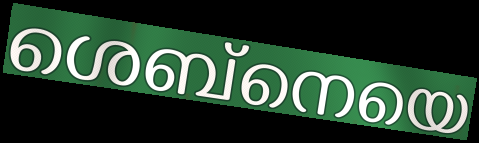
ശെബ്നെയെ